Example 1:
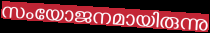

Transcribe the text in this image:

സംയോജനമായിരുന്നു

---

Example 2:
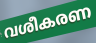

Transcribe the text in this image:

വശീകരണ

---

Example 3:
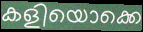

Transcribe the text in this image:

കളിയൊക്കെ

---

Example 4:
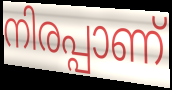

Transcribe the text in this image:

നിരപ്പാണ്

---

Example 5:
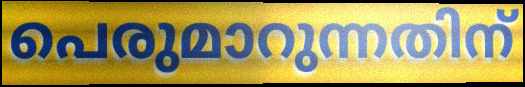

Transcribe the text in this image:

പെരുമാറുന്നതിന്